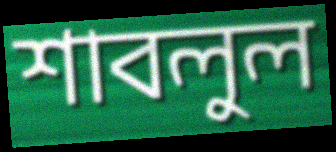
শাবলুল